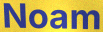
Noam